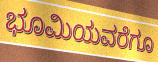
ಭೂಮಿಯವರೆಗೂ